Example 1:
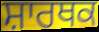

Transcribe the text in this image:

ਸ਼ਾਰਥਕ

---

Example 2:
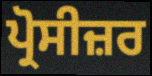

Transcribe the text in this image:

ਪ੍ਰੋਸੀਜ਼ਰ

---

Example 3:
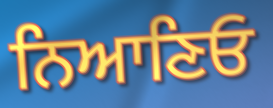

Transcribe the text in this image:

ਨਿਆਣਿਓ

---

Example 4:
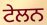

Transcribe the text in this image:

ਟੇਲਨ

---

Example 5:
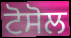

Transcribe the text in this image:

ਟੋਸੋਲ